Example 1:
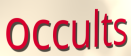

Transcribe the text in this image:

occults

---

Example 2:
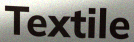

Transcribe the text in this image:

Textile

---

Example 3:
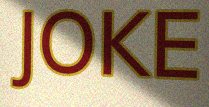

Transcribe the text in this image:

JOKE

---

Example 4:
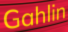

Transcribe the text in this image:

Gahlin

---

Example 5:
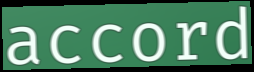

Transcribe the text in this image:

accord